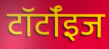
टॉर्टॉइज